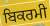
ਬਿਕਰਮੀ